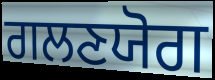
ਗਲਣਯੋਗ